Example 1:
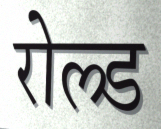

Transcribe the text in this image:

रोल्ड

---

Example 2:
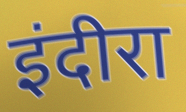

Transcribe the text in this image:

इंदीरा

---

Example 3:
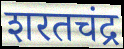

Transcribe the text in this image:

शरतचंद्र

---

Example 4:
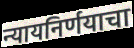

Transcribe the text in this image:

न्यायनिर्णयाचा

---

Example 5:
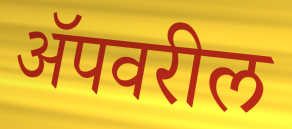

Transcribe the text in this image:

ॲपवरील